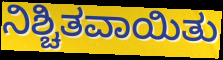
ನಿಶ್ಚಿತವಾಯಿತು